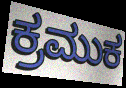
ಕ್ರಮುಕ